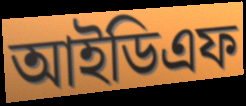
আইডিএফ